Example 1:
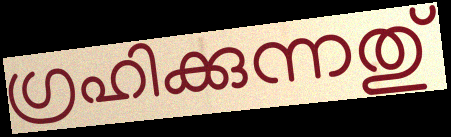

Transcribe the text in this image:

ഗ്രഹിക്കുന്നതു്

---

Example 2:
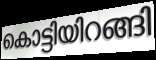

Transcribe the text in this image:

കൊട്ടിയിറങ്ങി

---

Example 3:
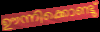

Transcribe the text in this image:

ഊന്നിക്കൊണ്ടു്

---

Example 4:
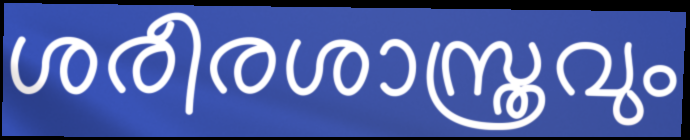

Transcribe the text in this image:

ശരീരശാസ്ത്രവും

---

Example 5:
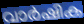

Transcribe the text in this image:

വാർഷിക